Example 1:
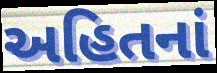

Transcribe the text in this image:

અહિતનાં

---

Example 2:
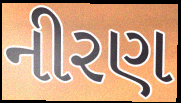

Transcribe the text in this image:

નીરણ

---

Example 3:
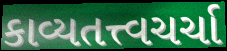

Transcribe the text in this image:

કાવ્યતત્ત્વચર્ચા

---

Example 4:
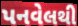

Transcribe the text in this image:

પનવેલથી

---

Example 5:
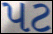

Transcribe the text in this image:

પટ